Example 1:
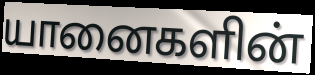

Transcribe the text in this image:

யானைகளின்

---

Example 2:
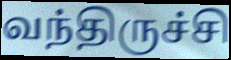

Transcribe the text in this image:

வந்திருச்சி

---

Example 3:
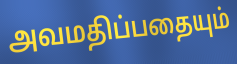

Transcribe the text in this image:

அவமதிப்பதையும்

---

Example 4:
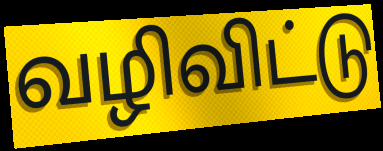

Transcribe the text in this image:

வழிவிட்டு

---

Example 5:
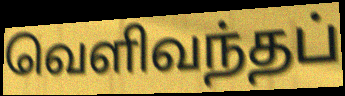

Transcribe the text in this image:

வெளிவந்தப்